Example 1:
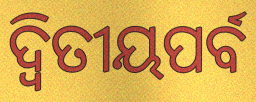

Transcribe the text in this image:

ଦ୍ୱିତୀୟପର୍ବ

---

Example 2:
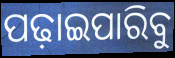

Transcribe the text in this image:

ପଢ଼ାଇପାରିବୁ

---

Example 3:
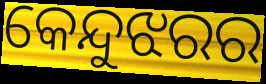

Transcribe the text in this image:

କେନ୍ଦୁଝରର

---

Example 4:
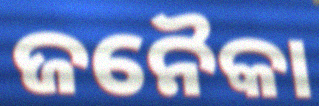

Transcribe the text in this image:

ଜନୈକା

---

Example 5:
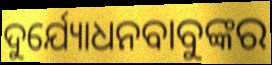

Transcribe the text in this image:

ଦୁର୍ଯ୍ୟୋଧନବାବୁଙ୍କର